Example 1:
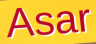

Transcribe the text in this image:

Asar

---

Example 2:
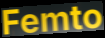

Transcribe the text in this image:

Femto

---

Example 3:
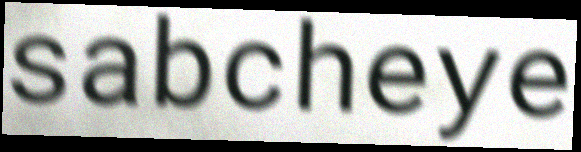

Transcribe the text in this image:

sabcheye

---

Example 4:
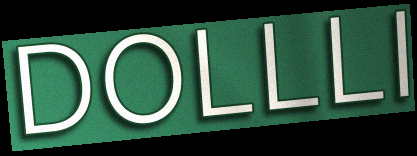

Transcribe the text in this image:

DOLLLI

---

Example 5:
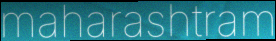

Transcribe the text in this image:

maharashtram